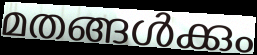
മതങ്ങൾക്കും